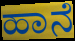
ಹಾನೆ